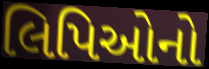
લિપિઓનો